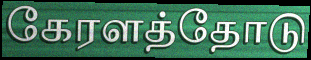
கேரளத்தோடு